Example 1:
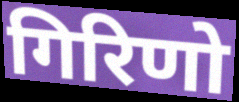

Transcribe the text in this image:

गिरिणो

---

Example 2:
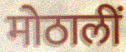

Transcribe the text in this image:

मोठालीं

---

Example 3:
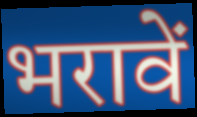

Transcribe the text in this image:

भरावें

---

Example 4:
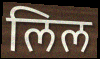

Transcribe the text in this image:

लिल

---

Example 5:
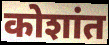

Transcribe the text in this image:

कोशांत